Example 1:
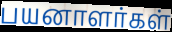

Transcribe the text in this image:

பயனாளர்கள்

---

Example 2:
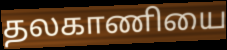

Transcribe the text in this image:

தலகாணியை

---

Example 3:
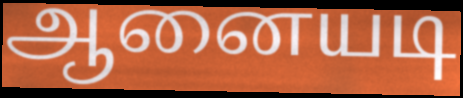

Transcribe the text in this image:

ஆனையடி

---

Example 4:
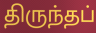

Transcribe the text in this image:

திருந்தப்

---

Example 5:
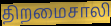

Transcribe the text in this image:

திறமைசாலி